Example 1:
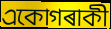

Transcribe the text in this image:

একোগৰাকী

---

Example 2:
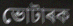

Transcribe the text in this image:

ভোটাৰক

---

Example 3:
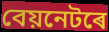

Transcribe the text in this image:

বেয়নেটৰে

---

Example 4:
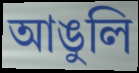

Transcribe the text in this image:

আঙুলি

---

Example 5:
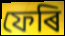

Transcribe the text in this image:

ফেৰি